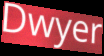
Dwyer